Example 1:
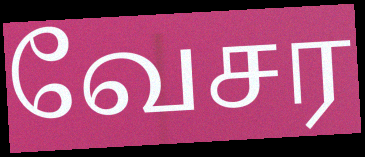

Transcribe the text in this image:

வேசர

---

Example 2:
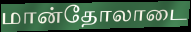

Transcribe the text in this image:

மான்தோலாடை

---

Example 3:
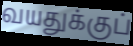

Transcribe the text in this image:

வயதுக்குப்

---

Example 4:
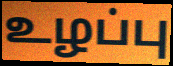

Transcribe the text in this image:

உழப்பு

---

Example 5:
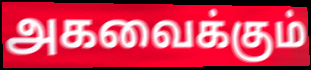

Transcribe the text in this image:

அகவைக்கும்